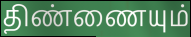
திண்ணையும்